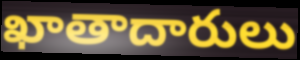
ఖాతాదారులు